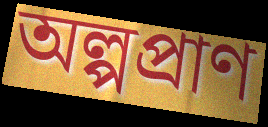
অল্পপ্ৰাণ